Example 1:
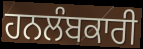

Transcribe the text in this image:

ਹਨਲੰਬਕਾਰੀ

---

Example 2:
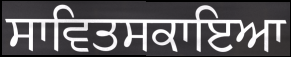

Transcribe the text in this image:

ਸਾਵਿਤਸਕਾਇਆ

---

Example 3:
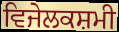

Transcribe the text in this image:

ਵਿਜੇਲਕਸ਼ਮੀ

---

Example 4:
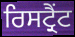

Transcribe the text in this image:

ਰਿਸਟ੍ਰੈਂਟ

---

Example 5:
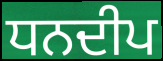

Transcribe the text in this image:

ਧਨਦੀਪ